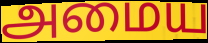
அமைய